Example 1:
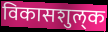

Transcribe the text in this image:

विकासशुल्क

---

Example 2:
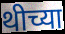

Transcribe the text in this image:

थीच्या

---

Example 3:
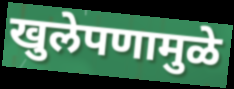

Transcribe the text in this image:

खुलेपणामुळे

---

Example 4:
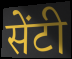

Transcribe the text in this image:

सेंटी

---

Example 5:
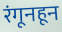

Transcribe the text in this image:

रंगूनहून